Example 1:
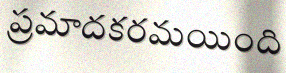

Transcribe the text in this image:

ప్రమాదకరమయింది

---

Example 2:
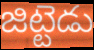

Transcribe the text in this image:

జిట్టెడు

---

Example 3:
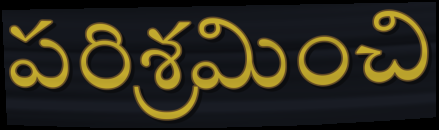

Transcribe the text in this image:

పరిశ్రమించి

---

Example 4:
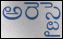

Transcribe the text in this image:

అరెస్టై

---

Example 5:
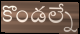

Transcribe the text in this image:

కొండల్నే